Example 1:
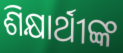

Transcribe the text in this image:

ଶିକ୍ଷାର୍ଥୀଙ୍କ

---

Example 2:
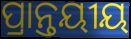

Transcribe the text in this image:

ପ୍ରାନ୍ତୟୀୟ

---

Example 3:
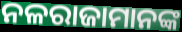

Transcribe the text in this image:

ନଳରାଜାମାନଙ୍କ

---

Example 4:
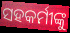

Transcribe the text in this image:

ସହକର୍ମୀଙ୍କୁ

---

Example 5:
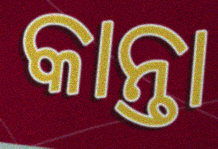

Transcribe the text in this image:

କାନ୍ତା